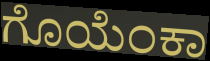
ಗೊಯೆಂಕಾ